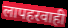
लापहरवाही